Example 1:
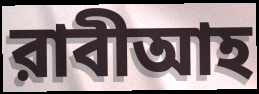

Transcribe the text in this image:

রাবীআহ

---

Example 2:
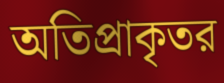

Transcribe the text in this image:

অতিপ্রাকৃতর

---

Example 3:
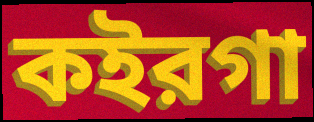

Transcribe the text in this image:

কইরগা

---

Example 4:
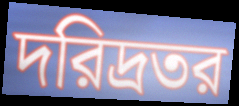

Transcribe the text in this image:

দরিদ্রতর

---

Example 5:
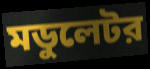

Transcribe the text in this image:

মডুলেটর